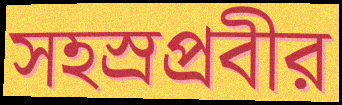
সহস্রপ্রবীর